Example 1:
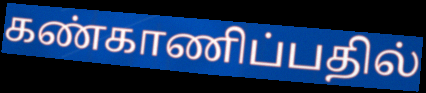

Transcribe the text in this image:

கண்காணிப்பதில்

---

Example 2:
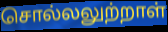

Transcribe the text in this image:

சொல்லலுற்றாள்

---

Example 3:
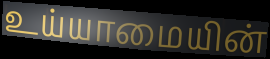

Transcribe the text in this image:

உய்யாமையின்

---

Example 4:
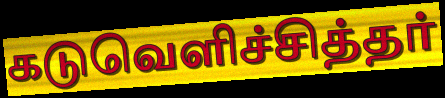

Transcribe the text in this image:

கடுவெளிச்சித்தர்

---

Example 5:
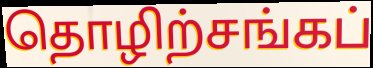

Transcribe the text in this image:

தொழிற்சங்கப்